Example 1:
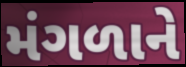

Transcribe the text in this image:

મંગળાને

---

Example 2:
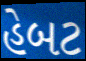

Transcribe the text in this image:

હેબટ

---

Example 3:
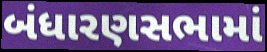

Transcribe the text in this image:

બંધારણસભામાં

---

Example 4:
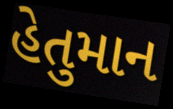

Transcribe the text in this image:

હેતુમાન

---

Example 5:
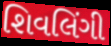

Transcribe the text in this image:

શિવલિંગી